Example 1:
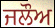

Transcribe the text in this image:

ਜਲੌਅ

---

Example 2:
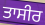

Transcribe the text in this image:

ਤਾਸੀਰ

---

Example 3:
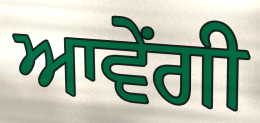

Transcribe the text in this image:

ਆਵੇਂਗੀ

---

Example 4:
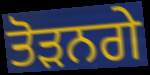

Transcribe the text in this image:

ਤੋੜਨਗੇ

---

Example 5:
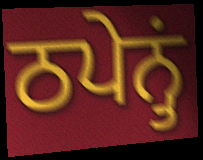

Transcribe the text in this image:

ਠਪੇਨ੍ਤਂ